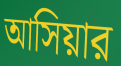
আসিয়ার